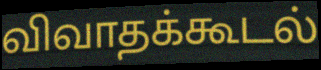
விவாதக்கூடல்